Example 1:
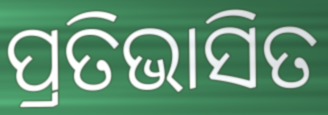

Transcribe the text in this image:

ପ୍ରତିଭାସିତ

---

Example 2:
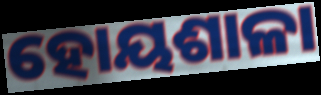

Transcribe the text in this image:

ହୋୟଶାଳା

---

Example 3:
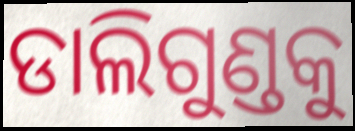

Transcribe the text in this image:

ଡାଲିଗୁଣ୍ଡକୁ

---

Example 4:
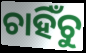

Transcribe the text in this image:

ଚାହିଁଚୁ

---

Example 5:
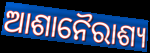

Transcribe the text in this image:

ଆଶାନୈରାଶ୍ୟ